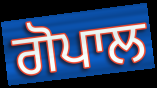
ਗੋਪਾਲ